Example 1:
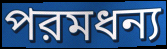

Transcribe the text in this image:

পরমধন্য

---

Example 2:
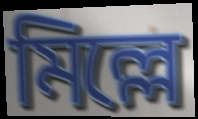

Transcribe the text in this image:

মিল্লে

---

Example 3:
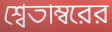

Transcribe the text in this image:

শ্বেতাম্বরের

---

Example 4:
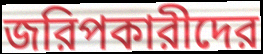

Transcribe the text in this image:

জরিপকারীদের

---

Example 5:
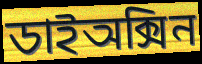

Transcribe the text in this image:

ডাইঅক্সিন